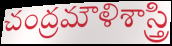
చంద్రమౌళిశాస్త్రి